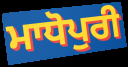
ਮਾਧੋਪੁਰੀ